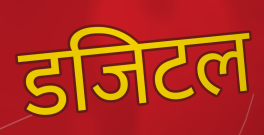
डजिटल